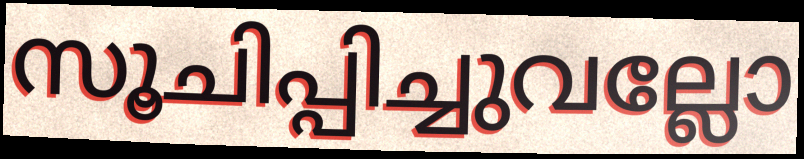
സൂചിപ്പിച്ചുവല്ലോ